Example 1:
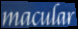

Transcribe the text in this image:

macular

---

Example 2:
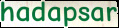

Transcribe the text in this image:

hadapsar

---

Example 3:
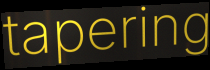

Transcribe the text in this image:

tapering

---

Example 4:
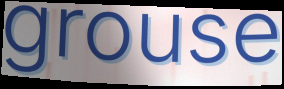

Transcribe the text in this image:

grouse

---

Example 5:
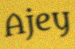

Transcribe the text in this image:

Ajey